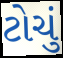
ટોચું